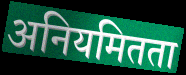
अनियमितता